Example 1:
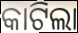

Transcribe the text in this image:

କାଟିଲା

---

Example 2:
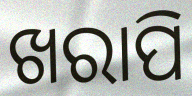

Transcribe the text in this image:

ଖରାପି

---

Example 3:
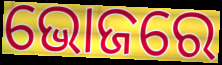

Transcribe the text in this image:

ଭୋଜରେ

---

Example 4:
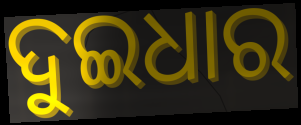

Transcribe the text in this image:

ଦୁଇଧାର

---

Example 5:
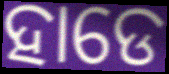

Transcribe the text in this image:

ହାଡେ